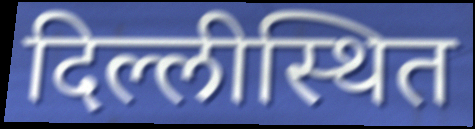
दिल्लीस्थित